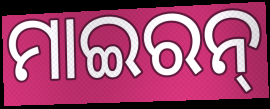
ମାଇରନ୍